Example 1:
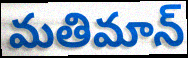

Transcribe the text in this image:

మతిమాన్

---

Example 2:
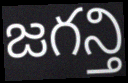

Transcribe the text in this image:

జగన్తి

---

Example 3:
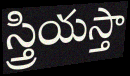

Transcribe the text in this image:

స్త్రియస్తా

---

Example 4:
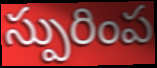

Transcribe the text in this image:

స్పురింప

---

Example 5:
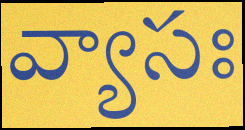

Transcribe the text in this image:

వ్యాసః